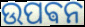
ଉପଵନ